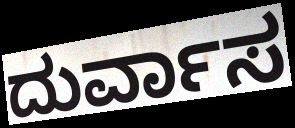
ದುರ್ವಾಸ